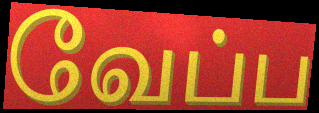
வேப்ப